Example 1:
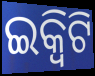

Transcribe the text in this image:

ଇକ୍ବିଟି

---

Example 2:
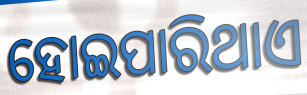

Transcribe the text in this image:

ହୋଇପାରିଥାଏ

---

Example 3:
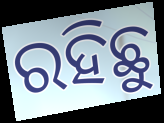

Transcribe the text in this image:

ରହିଛୁ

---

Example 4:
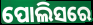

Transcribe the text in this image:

ପୋଲିସରେ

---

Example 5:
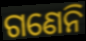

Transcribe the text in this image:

ଗଣେନି